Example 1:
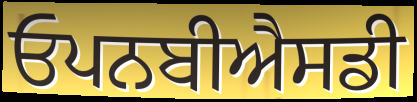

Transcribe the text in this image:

ਓਪਨਬੀਐਸਡੀ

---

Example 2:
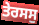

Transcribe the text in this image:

ਤੇਰਸਸੁ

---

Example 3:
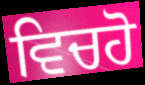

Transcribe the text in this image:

ਵਿਚਹੋ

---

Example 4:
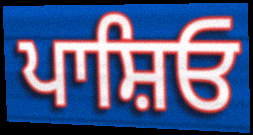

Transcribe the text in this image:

ਪਾਸ਼ਿਓ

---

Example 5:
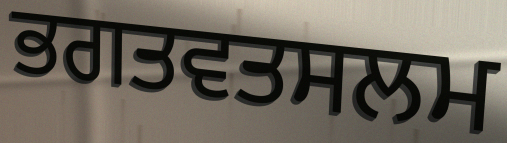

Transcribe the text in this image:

ਭਗਤਵਤਸਲਮ